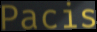
Pacis